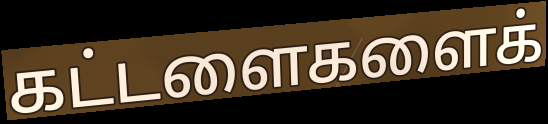
கட்டளைகளைக்